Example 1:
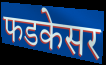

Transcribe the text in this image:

फडकेसर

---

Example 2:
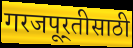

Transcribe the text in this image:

गरजपूर्तीसाठी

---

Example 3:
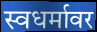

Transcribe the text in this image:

स्वधर्मावर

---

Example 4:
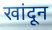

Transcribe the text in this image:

खांदून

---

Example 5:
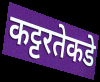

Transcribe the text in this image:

कट्टरतेकडे